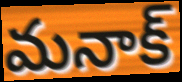
మనాక్